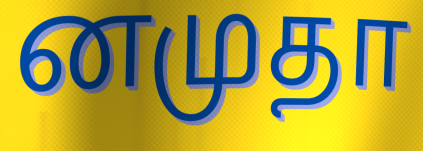
னமுதா